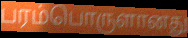
பரம்பொருளானது